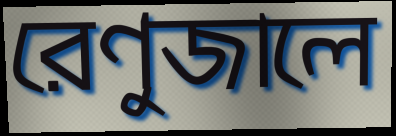
রেণুজালে